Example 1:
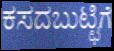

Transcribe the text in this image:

ಕಸದಬುಟ್ಟಿಗೆ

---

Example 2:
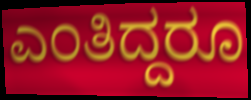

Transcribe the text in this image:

ಎಂತಿದ್ದರೂ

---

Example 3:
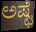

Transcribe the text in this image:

ಅಷ್ಟೆ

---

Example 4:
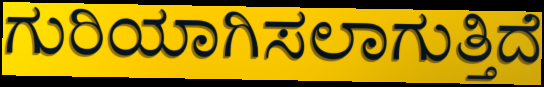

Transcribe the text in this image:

ಗುರಿಯಾಗಿಸಲಾಗುತ್ತಿದೆ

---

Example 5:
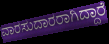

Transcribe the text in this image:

ವಾರಸುದಾರರಾಗಿದ್ದಾರೆ